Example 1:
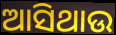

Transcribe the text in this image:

ଆସିଥାଉ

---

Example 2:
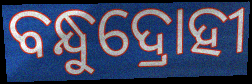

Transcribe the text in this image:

ବନ୍ଧୁଦ୍ରୋହୀ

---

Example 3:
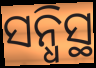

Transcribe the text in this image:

ସନ୍ଧିସ୍ଥ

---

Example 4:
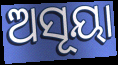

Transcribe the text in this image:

ଅସୂୟା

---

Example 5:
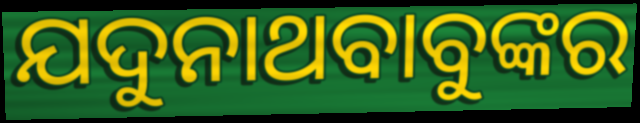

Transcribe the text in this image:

ଯଦୁନାଥବାବୁଙ୍କର